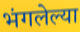
भंगलेल्या